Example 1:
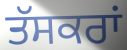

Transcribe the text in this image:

ਤੱਸਕਰਾਂ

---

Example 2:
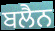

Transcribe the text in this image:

ਬਲੈਨ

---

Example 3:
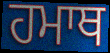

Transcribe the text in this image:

ਹਮਾਥ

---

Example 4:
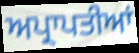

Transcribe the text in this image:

ਅਪ੍ਰਾਪਤੀਆਂ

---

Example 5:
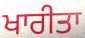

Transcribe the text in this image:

ਖਾਰੀਤਾ